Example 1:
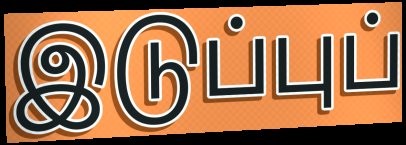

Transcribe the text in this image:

இடுப்புப்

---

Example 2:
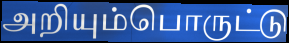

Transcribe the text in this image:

அறியும்பொருட்டு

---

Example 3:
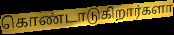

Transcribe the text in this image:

கொண்டாடுகிறார்களா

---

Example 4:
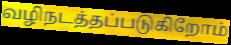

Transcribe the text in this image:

வழிநடத்தப்படுகிறோம்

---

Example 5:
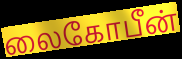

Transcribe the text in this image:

லைகோபீன்